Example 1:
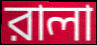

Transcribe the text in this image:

রালা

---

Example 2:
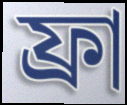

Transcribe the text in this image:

ফ্রা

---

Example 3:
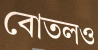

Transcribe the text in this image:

বোতলও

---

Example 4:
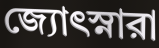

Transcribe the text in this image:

জ্যোৎস্নারা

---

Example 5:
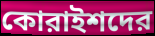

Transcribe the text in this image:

কোরাইশদের